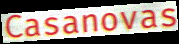
Casanovas